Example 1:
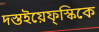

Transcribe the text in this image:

দস্তইয়েফ্স্কিকে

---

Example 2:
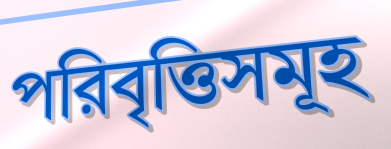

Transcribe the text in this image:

পরিবৃত্তিসমূহ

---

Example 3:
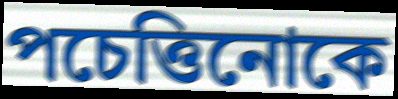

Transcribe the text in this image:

পচেত্তিনোকে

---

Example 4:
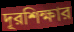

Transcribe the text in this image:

দূরশিক্ষার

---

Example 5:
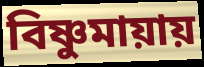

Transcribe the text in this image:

বিষ্ণুমায়ায়